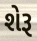
શેરૂ